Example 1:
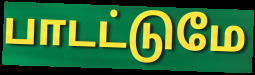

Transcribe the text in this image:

பாடட்டுமே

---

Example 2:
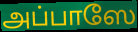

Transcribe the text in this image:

அப்பாஸே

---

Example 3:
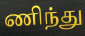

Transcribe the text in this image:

ணிந்து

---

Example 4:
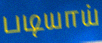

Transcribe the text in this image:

படியாய்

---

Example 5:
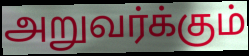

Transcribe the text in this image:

அறுவர்க்கும்